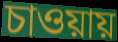
চাওয়ায়